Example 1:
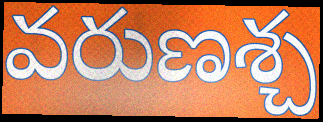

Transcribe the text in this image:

వరుణశ్చ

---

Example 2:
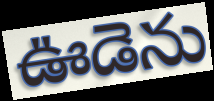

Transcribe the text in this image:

ఊడెను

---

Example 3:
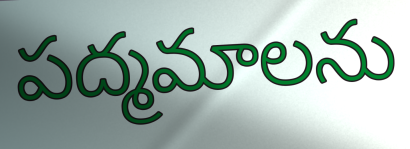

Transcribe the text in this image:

పద్మమాలను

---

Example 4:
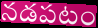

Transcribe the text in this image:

నడపటం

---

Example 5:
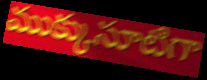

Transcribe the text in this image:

ముక్కుసూటిగా